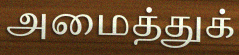
அமைத்துக்